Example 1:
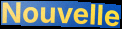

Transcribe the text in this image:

Nouvelle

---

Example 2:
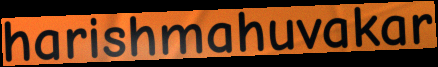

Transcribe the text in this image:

harishmahuvakar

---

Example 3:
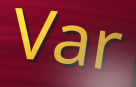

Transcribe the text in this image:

Var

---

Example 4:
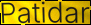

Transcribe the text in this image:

Patidar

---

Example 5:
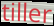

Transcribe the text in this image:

tiller